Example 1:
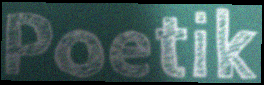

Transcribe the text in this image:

Poetik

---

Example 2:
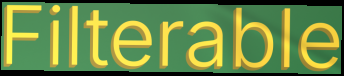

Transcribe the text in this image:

Filterable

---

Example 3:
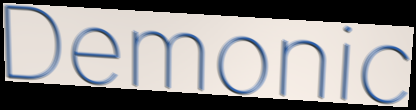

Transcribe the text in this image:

Demonic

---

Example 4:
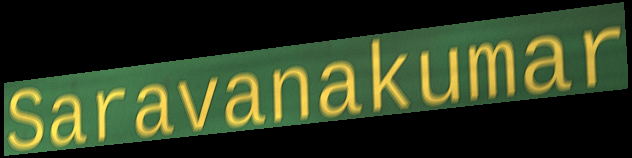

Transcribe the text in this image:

Saravanakumar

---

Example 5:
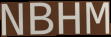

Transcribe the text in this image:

NBHM